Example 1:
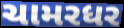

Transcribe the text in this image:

ચામરધર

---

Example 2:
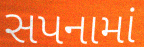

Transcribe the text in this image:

સપનામાં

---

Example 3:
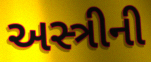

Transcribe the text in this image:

અસ્ત્રીની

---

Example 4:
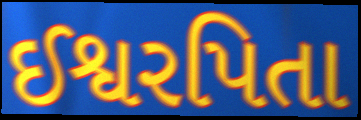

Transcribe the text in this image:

ઈશ્વરપિતા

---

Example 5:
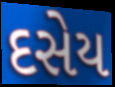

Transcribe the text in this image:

દસેય